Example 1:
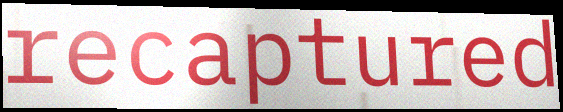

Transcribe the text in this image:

recaptured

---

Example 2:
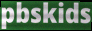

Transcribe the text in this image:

pbskids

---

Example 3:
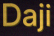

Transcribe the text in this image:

Daji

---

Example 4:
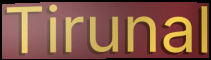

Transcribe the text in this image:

Tirunal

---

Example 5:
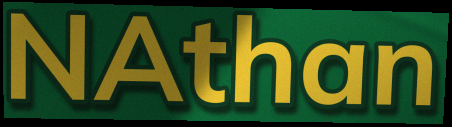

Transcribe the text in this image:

NAthan